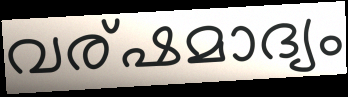
വര്ഷമാദ്യം